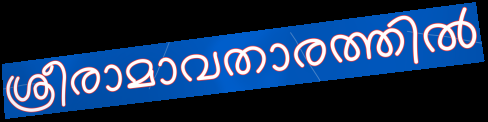
ശ്രീരാമാവതാരത്തിൽ